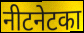
नीटनेटका